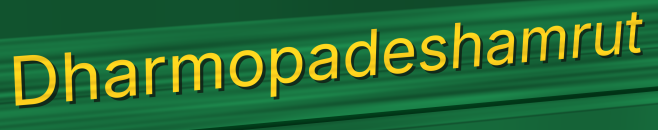
Dharmopadeshamrut